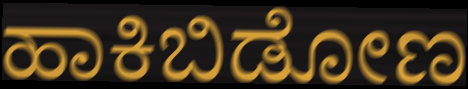
ಹಾಕಿಬಿಡೋಣ